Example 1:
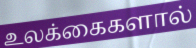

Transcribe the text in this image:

உலக்கைகளால்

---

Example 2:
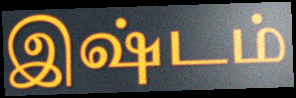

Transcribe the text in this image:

இஷ்டம்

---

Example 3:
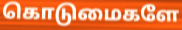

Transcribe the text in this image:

கொடுமைகளே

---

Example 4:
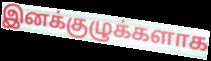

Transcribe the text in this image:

இனக்குழுக்களாக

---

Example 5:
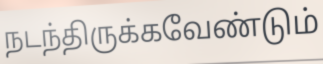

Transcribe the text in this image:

நடந்திருக்கவேண்டும்